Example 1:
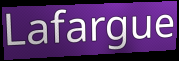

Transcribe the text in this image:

Lafargue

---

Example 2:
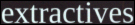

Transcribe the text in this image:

extractives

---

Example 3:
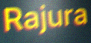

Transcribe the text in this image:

Rajura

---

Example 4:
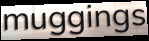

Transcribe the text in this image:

muggings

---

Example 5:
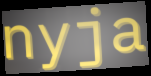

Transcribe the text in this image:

nyja